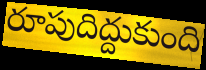
రూపుదిద్దుకుంది